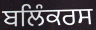
ਬਲਿੰਕਰਸ